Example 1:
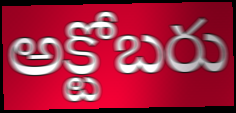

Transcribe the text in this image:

అక్టోబరు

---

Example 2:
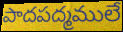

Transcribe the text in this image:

పాదపద్మములే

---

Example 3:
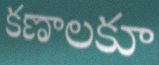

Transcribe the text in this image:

కణాలకూ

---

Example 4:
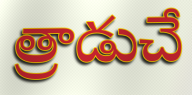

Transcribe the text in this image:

త్రాడుచే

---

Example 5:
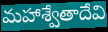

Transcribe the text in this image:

మహాశ్వేతాదేవి